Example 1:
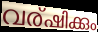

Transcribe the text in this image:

വര്ഷിക്കും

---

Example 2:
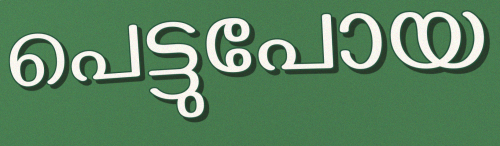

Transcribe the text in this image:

പെട്ടുപോയ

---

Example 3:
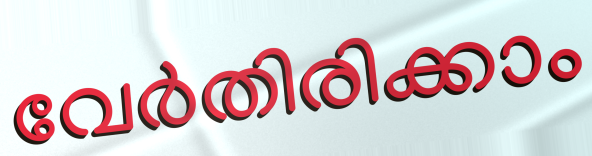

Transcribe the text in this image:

വേർതിരിക്കാം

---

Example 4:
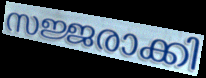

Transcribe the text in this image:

സജ്ജരാക്കി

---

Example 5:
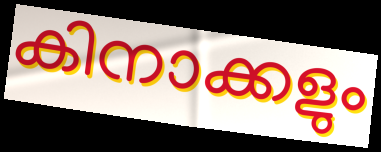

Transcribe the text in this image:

കിനാക്കളും